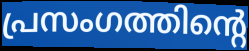
പ്രസംഗത്തിന്റെ